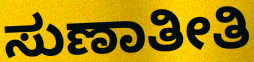
ಸುಣಾತೀತಿ